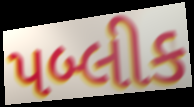
પબ્લીક